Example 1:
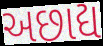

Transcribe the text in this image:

અછાદ્ય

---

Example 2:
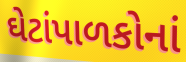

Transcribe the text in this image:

ઘેટાંપાળકોનાં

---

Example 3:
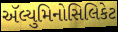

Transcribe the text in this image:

ઍલ્યુમિનોસિલિકેટ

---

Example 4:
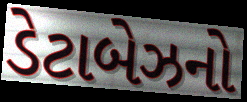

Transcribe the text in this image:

ડેટાબેઝનો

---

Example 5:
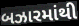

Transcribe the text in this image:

બઝારમાંથી